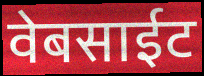
वेबसाईट